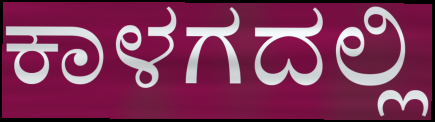
ಕಾಳಗದಲ್ಲಿ